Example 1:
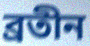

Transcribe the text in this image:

ব্রতীন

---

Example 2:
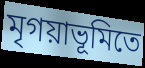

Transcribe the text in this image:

মৃগয়াভূমিতে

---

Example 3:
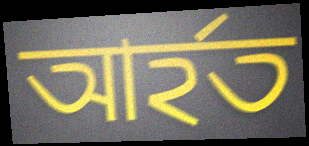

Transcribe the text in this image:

আর্হত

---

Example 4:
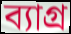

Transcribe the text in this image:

ব্যাগ্র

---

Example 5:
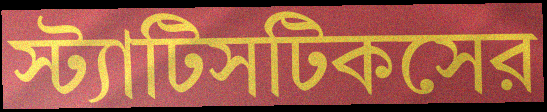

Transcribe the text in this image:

স্ট্যাটিসটিকসের